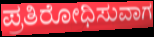
ಪ್ರತಿರೋಧಿಸುವಾಗ